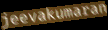
jeevakumaran